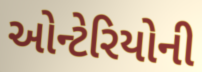
ઓન્ટેરિયોની